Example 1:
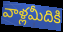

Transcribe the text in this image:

వాళ్లమీదికి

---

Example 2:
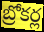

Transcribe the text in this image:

బ్రోకర్ల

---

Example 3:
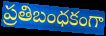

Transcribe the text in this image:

ప్రతిబంధకంగా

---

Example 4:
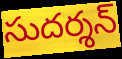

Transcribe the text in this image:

సుదర్శన్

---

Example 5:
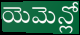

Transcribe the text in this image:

యెమెన్లో